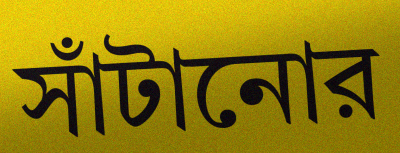
সাঁটানোর